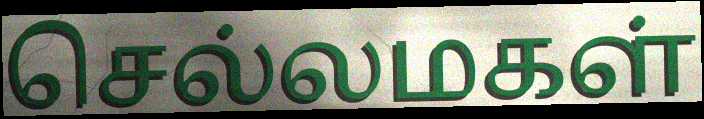
செல்லமகள்